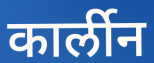
कार्लीन